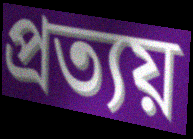
প্ৰত্যয়